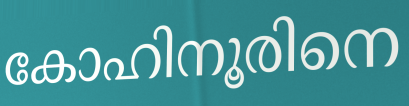
കോഹിനൂരിനെ